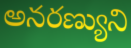
అనరణ్యుని